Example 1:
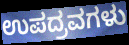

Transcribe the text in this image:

ಉಪದ್ರವಗಳು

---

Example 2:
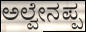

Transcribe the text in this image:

ಅಲ್ವೇನಪ್ಪ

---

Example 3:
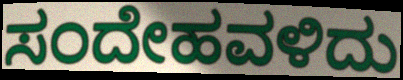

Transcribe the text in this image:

ಸಂದೇಹವಳಿದು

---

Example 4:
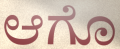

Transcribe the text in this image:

ಆಗೊ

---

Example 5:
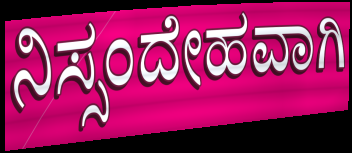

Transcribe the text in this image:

ನಿಸ್ಸಂದೇಹವಾಗಿ